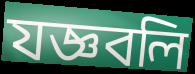
যজ্ঞবলি